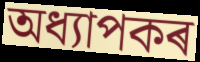
অধ্যাপকৰ